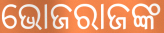
ଭୋଜରାଜଙ୍କ